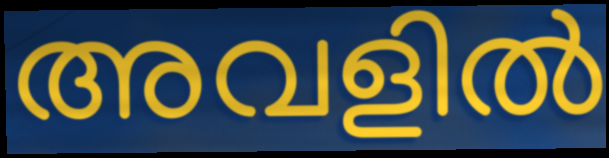
അവളിൽ